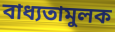
বাধ্যতামুলক